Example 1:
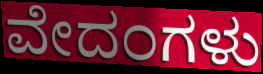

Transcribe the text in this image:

ವೇದಂಗಳು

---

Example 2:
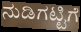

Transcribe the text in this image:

ನುಡಿಗಟ್ಟಿಗೆ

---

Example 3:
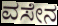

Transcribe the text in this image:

ವಸೇನ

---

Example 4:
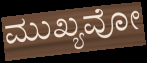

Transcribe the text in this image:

ಮುಖ್ಯವೋ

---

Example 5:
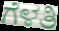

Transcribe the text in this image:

ಗೆಳತಿ